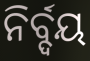
ନିର୍ବ୍ଦୟ